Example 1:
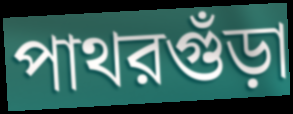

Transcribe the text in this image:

পাথরগুঁড়া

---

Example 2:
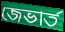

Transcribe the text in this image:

জেভার্ত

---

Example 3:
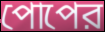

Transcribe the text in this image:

পোপের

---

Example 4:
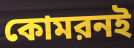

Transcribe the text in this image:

কোমরনই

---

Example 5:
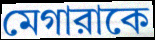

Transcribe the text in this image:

মেগারাকে